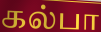
கல்பா